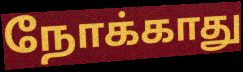
நோக்காது